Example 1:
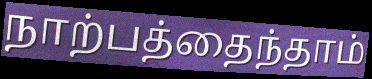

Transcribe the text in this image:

நாற்பத்தைந்தாம்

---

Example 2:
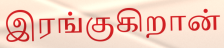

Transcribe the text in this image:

இரங்குகிறான்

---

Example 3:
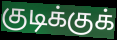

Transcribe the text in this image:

குடிக்குக்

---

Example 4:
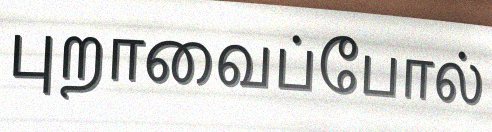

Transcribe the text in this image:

புறாவைப்போல்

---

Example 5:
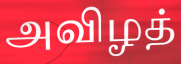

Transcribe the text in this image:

அவிழத்